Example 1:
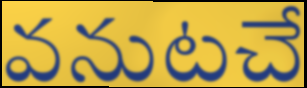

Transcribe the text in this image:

వనుటచే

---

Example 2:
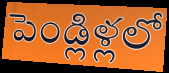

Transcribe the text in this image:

పెండ్లిళ్లలో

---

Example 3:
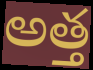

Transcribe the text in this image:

అత్త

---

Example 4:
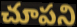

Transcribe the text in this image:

చూపని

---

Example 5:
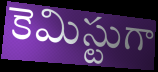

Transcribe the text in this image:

కెమిస్టుగా